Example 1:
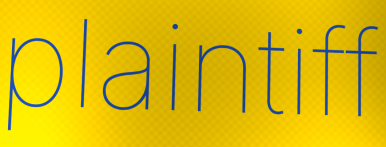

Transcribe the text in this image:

plaintiff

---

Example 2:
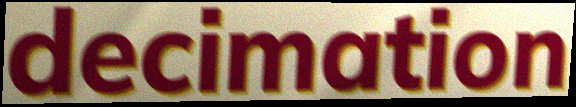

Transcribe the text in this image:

decimation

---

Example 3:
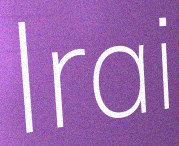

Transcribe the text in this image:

Irai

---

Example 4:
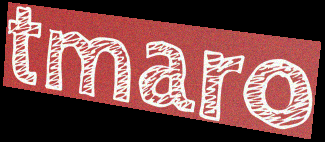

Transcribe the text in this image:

tmaro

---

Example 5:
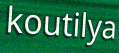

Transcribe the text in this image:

koutilya